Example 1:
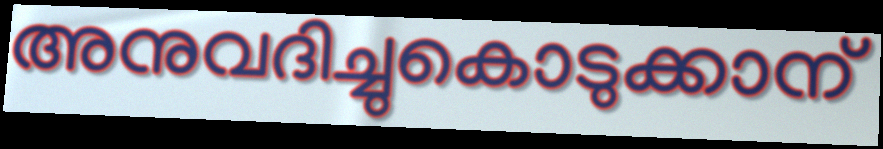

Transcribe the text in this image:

അനുവദിച്ചുകൊടുക്കാന്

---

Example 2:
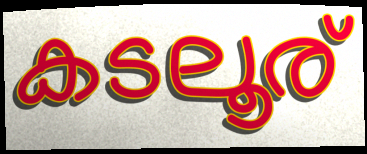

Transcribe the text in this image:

കടലൂര്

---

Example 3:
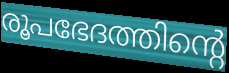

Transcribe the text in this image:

രൂപഭേദത്തിന്റെ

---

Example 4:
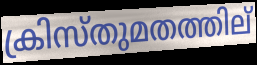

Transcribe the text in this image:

ക്രിസ്തുമതത്തില്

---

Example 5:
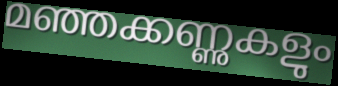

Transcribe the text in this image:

മഞ്ഞക്കണ്ണുകളും